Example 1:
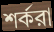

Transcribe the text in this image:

শর্করা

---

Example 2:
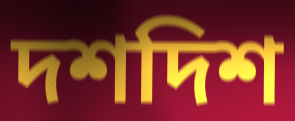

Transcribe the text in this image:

দশদিশ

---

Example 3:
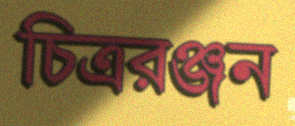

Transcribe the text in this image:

চিত্ররঞ্জন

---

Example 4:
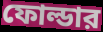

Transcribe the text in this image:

ফোল্ডার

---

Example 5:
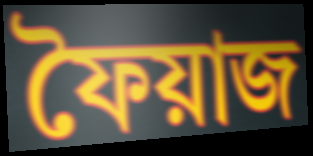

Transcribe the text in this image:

ফৈয়াজ